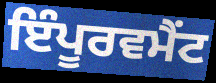
ਇੰਪੂਰਵਮੈਂਟ